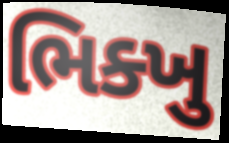
ભિક્ખુ